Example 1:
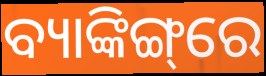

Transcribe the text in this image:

ବ୍ୟାଙ୍କିଙ୍ଗ୍‌ରେ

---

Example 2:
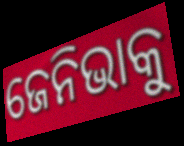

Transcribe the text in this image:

ଜେନିଭାକୁ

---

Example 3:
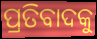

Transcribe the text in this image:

ପ୍ରତିବାଦକୁ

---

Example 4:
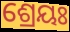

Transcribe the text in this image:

ଶ୍ରେୟଃ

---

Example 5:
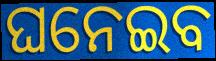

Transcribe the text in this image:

ଘନେଇବ